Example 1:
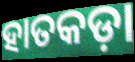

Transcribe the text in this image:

ହାତକଡ଼ା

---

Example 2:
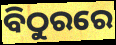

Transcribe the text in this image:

ବିଠୁରରେ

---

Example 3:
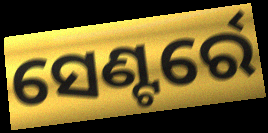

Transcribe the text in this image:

ସେଣ୍ଟର୍ରେ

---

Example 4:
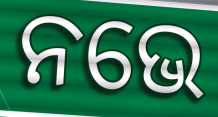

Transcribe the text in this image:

ନଭେ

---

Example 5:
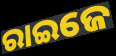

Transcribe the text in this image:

ରାଇଜେ